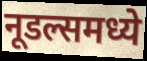
नूडल्समध्ये